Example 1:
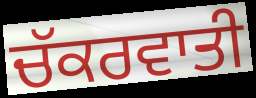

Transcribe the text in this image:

ਚੱਕਰਵਾਤੀ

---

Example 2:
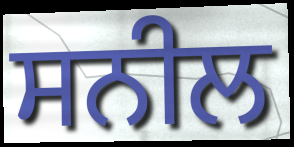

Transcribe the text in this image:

ਸਨੀਲ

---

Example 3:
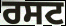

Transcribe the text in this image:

ਰਸਟ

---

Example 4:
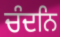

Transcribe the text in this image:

ਚੰਦਨਿ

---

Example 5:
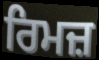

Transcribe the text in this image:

ਰਿਮਜ਼